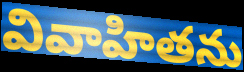
వివాహితను